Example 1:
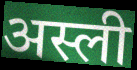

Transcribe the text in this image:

अस्ली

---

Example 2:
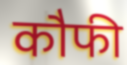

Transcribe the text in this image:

कौफी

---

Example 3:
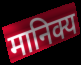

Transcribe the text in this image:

मानिक्य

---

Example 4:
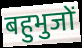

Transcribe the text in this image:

बहुभुजों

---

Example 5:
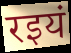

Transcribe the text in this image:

रइयं